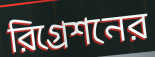
রিগ্রেশনের